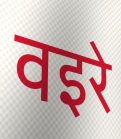
वइरे